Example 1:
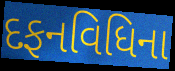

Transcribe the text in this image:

દફનવિધિના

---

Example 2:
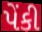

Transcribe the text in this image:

પેંકી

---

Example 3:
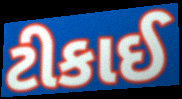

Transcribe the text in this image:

ટીકાઈ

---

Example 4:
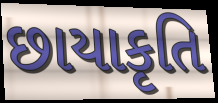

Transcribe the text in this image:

છાયાકૃતિ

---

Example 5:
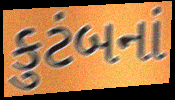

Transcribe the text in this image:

કુટંબનાં